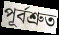
পূর্বশ্রুত